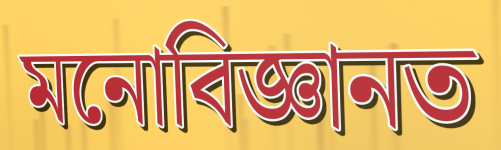
মনোবিজ্ঞানত